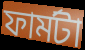
ফার্মটা